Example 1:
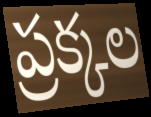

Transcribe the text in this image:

ప్రక్కల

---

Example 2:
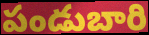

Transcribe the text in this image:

పండుబారి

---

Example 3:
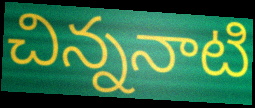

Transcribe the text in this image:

చిన్ననాటి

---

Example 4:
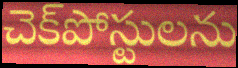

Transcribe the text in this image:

చెక్‌పోస్టులను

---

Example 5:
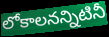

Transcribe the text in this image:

లోకాలనన్నిటినీ